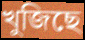
খুজিছে